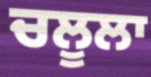
ਚਲੂਲਾ